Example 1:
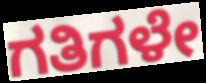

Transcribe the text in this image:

ಗತಿಗಳೇ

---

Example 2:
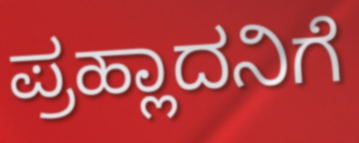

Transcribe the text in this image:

ಪ್ರಹ್ಲಾದನಿಗೆ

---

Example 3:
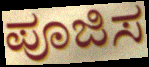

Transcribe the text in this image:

ಪೂಜಿಸ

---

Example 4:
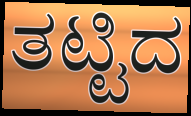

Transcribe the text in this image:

ತಟ್ಟಿದ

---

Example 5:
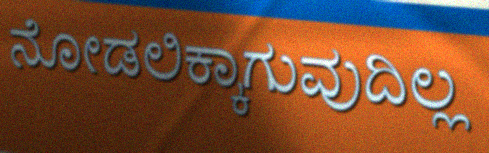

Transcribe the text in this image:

ನೋಡಲಿಕ್ಕಾಗುವುದಿಲ್ಲ